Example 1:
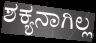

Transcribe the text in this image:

ಶಕ್ಯನಾಗಿಲ್ಲ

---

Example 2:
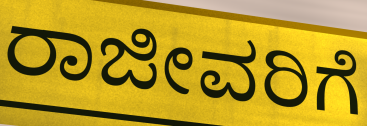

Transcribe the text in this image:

ರಾಜೀವರಿಗೆ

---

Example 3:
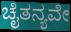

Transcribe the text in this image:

ಚೈತನ್ಯವೇ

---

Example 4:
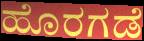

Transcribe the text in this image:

ಹೊರಗಡೆ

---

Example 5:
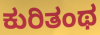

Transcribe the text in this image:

ಕುರಿತಂಥ